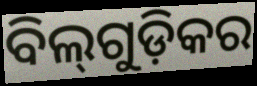
ବିଲ୍‌ଗୁଡ଼ିକର